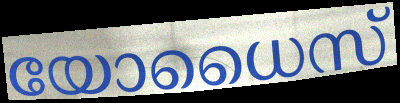
യോധൈസ്